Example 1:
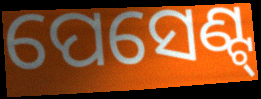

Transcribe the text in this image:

ପେସେଣ୍ଟ୍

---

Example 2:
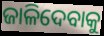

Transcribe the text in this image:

ଜାଳିଦେବାକୁ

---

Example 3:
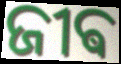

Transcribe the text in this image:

ଜୀଵ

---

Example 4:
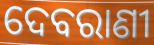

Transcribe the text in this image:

ଦେବରାଣୀ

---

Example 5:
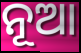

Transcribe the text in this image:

ନୂଆ